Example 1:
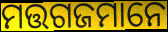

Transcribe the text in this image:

ମତ୍ତଗଜମାନେ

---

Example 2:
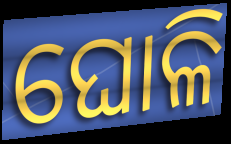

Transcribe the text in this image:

ଘୋଳି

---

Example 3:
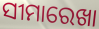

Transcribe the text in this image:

ସୀମାରେଖା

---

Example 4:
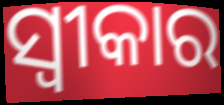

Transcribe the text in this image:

ସ୍ୱୀକାର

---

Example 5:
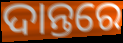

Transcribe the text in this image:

ଦାନ୍ତରେ